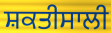
ਸ਼ਕਤੀਸਾਲੀ